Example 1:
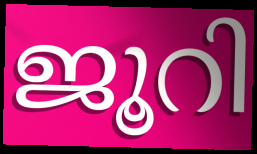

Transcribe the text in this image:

ജൂറി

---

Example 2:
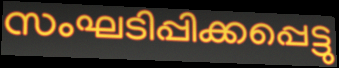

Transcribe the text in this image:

സംഘടിപ്പിക്കപ്പെട്ടു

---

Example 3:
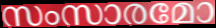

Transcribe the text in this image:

സംസാരമോ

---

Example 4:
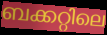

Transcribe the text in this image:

ബക്കറ്റിലെ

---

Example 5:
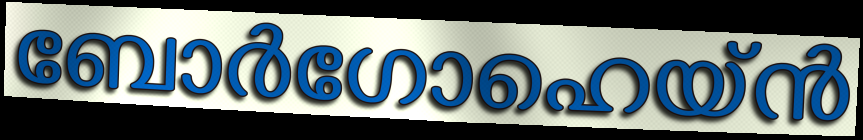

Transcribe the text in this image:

ബോർഗോഹെയ്ൻ